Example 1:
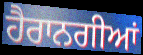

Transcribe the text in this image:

ਹੈਰਾਨਗੀਆਂ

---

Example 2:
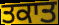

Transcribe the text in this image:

ਤਕਾਤ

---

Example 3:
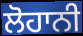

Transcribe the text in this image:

ਲੋਹਾਨੀ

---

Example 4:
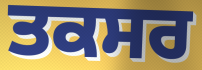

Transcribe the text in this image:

ਤਕਸਰ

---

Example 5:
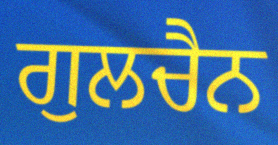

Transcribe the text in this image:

ਗੁਲਚੈਨ